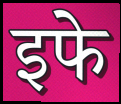
इफे